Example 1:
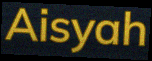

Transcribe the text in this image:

Aisyah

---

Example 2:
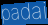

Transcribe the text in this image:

padai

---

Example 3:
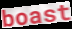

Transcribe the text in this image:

boast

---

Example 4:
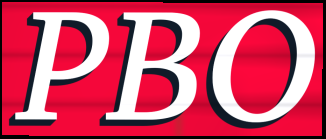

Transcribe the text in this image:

PBO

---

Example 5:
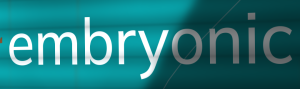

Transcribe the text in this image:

embryonic